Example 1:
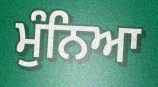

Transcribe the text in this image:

ਮੁੰਨਿਆ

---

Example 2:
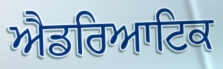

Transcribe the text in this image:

ਐਡਰਿਆਟਿਕ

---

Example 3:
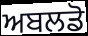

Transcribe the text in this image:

ਅਬਲਡੋ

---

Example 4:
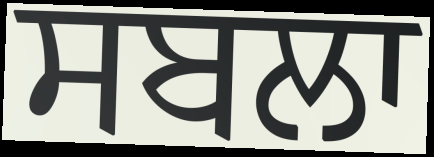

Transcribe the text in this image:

ਸਬਲਾ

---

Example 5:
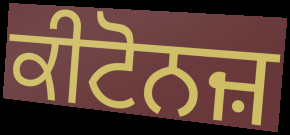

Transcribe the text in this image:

ਕੀਟੋਨਜ਼